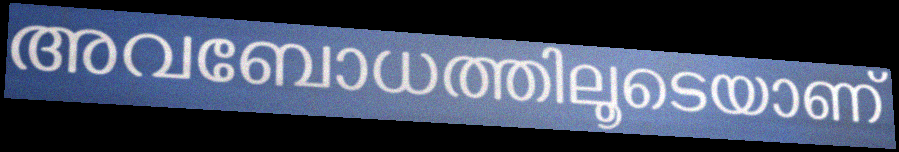
അവബോധത്തിലൂടെയാണ്